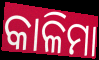
କାଳିମା